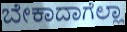
ಬೇಕಾದಾಗೆಲ್ಲಾ